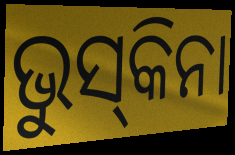
ଭୁସ୍‌କିନା